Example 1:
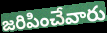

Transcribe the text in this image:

జరిపించేవారు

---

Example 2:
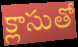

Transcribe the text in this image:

క్లాసుతో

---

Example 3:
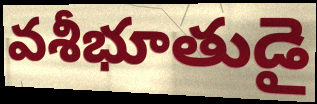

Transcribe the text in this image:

వశీభూతుడై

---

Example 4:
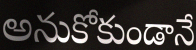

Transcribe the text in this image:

అనుకోకుండానే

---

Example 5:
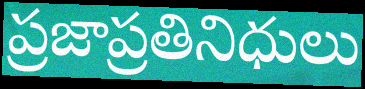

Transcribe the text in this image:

ప్రజాప్రతినిధులు